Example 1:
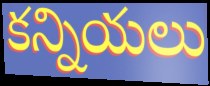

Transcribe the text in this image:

కన్నియలు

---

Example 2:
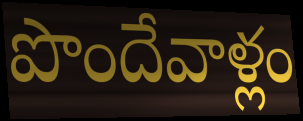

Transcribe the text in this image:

పొందేవాళ్లం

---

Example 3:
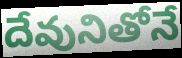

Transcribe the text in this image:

దేవునితోనే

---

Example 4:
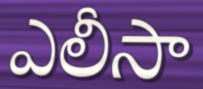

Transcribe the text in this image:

ఎలీసా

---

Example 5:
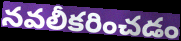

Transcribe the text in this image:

నవలీకరించడం